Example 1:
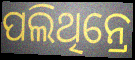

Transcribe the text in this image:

ପଲିଥିନ୍ରେ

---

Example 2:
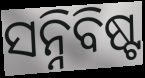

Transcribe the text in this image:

ସନ୍ନିବିଷ୍ଟ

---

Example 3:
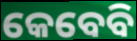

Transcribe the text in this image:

କେବେବି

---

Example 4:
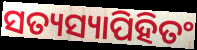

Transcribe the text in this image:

ସତ୍ୟସ୍ୟାପିହିତଂ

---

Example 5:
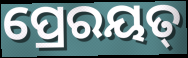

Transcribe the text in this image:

ପ୍ରେରୟତ୍